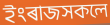
ইংৰাজসকলে